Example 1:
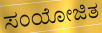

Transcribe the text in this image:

ಸಂಯೋಜಿತ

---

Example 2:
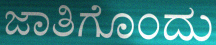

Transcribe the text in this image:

ಜಾತಿಗೊಂದು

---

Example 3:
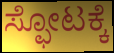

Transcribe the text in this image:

ಸ್ಫೋಟಕ್ಕೆ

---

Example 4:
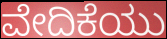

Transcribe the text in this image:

ವೇದಿಕೆಯು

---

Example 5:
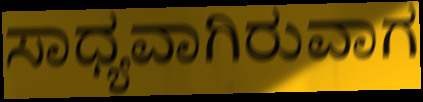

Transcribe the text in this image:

ಸಾಧ್ಯವಾಗಿರುವಾಗ